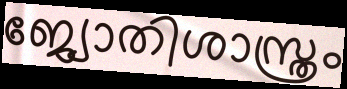
ജ്യോതിശാസ്ത്രം